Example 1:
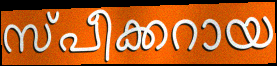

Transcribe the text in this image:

സ്പീക്കറായ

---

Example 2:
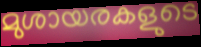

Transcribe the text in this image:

മുശായരകളുടെ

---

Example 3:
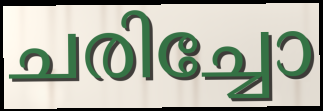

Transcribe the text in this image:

ചരിച്ചോ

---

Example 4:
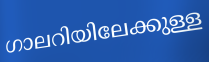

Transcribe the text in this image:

ഗാലറിയിലേക്കുള്ള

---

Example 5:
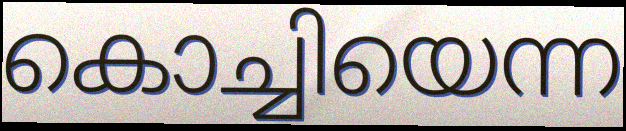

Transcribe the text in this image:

കൊച്ചിയെന്ന